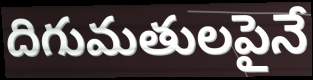
దిగుమతులపైనే